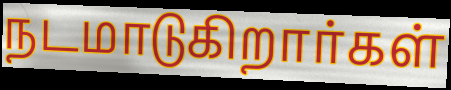
நடமாடுகிறார்கள்